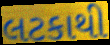
લટકાથી